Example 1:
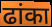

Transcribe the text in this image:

ढांका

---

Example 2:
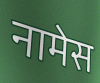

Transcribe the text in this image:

नामेस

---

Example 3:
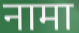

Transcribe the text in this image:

नामा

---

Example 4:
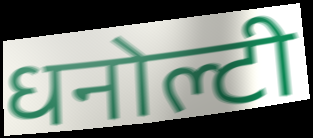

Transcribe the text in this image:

धनोल्‍टी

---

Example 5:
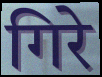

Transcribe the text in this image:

गिरे